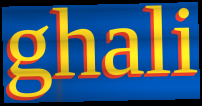
ghali